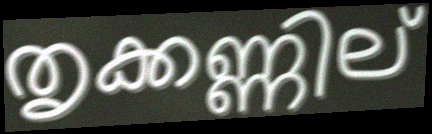
തൃക്കണ്ണില്